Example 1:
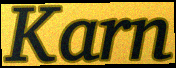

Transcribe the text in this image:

Karn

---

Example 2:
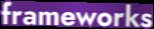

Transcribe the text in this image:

frameworks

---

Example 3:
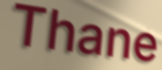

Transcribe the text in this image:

Thane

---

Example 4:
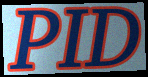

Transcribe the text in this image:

PID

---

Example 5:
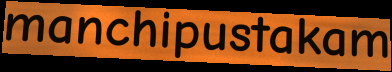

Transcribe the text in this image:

manchipustakam